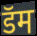
डॅम